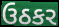
ઉઠકર